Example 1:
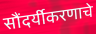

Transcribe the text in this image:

सौंदर्यीकरणाचे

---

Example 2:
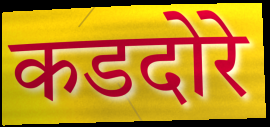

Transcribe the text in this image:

कडदोरे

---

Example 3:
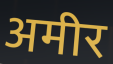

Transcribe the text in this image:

अमीर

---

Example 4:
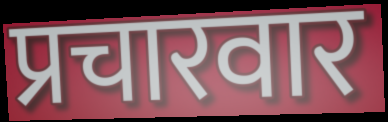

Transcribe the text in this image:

प्रचारवार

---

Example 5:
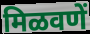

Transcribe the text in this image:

मिळवणें